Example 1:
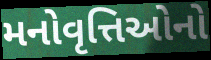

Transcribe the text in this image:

મનોવૃત્તિઓનો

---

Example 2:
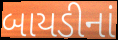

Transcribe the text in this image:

બાયડીનાં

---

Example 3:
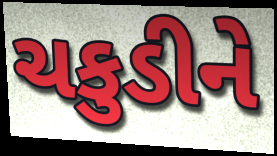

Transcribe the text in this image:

ચકુડીને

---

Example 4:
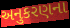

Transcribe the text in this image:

અનુકરણના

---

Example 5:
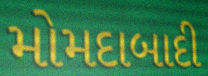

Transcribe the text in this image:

મોમદાબાદી